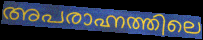
അപരാഹ്നത്തിലെ